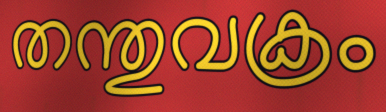
തന്തുവക്രം